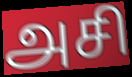
அசி